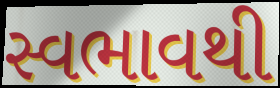
સ્વભાવથી